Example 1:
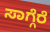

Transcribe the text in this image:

ಸಾಗ್ಗೆರೆ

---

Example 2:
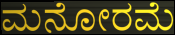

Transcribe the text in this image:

ಮನೋರಮೆ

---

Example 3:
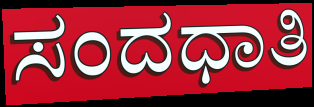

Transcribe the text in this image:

ಸಂದಧಾತಿ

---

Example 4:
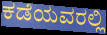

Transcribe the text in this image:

ಕಡೆಯವರಲ್ಲಿ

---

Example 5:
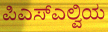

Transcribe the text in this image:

ಪಿಎಸ್ಎಲ್ವಿಯ